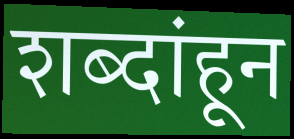
शब्दांहून